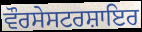
ਵੌਰਸੇਸਟਰਸ਼ਾਇਰ